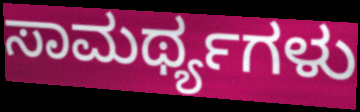
ಸಾಮರ್ಥ್ಯಗಳು